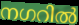
നഗറിൽ